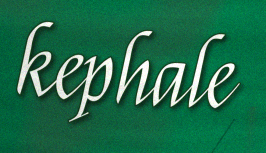
kephale